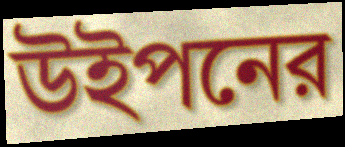
উইপনের